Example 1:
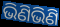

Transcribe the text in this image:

ଭିଣିଭିଣି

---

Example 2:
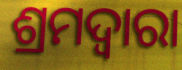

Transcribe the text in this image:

ଶ୍ରମଦ୍ୱାରା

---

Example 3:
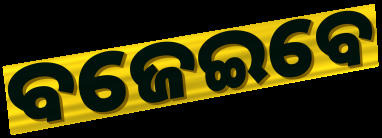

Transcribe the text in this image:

ବଜେଇବେ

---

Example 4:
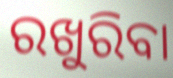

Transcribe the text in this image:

ରଖୁରିବା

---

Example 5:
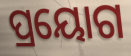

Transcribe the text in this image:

ପ୍ରୟୋଗ